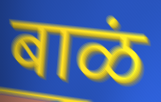
बाळं